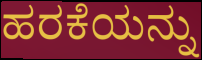
ಹರಕೆಯನ್ನು